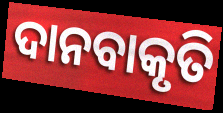
ଦାନବାକୃତି